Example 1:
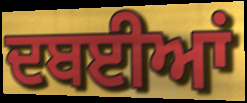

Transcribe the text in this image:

ਦਬਈਆਂ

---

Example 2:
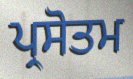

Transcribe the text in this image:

ਪ੍ਰਸੋਤਮ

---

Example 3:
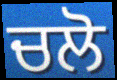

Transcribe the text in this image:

ਚਲੋ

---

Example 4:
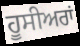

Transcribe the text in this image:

ਹੂਸੀਅਰਾਂ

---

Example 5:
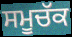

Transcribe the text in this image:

ਸਮੂਚੱਕ